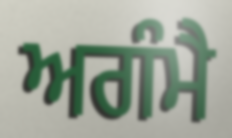
ਅਗੰਮੈ